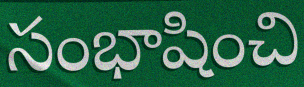
సంభాషించి